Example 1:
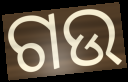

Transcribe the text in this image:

ଗଉ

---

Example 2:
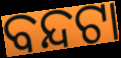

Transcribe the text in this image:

ବନ୍ଦଟା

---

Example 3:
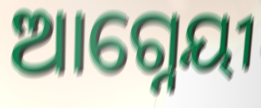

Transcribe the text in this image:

ଆଗ୍ନେୟୀ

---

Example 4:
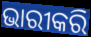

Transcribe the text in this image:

ଭାରୀକରି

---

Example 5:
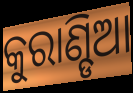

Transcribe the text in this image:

କୁରାଣ୍ଡିଆ